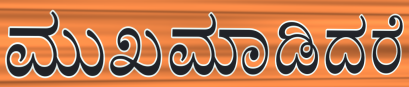
ಮುಖಮಾಡಿದರೆ